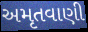
અમૃતવાણી